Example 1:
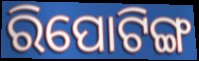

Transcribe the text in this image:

ରିପୋଟିଙ୍ଗ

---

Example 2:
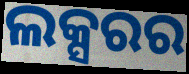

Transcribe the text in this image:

ଲକ୍ସରର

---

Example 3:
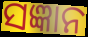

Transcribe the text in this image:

ସଜ୍ଞାନ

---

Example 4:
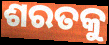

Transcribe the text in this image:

ଶରତକୁ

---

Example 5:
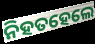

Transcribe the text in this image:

ନିହତହେଲେ